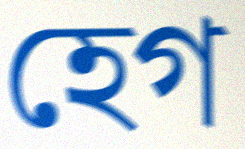
হেগ